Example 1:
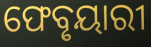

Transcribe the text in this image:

ଫେବୃୟାରୀ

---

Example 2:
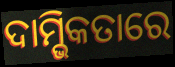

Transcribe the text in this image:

ଦାମ୍ଭିକତାରେ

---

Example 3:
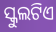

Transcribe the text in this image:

ସ୍କୁଲଟିଏ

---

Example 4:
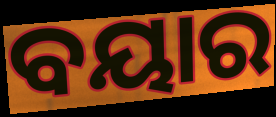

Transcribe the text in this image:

ବୟାର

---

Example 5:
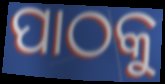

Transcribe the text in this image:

ପାଠକୁ